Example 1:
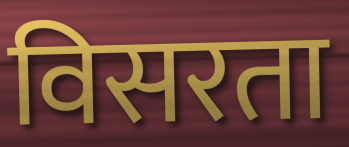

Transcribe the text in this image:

विसरता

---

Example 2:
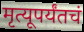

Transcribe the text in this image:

मृत्यूपर्यंतचं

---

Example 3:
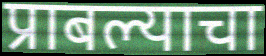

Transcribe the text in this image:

प्राबल्याचा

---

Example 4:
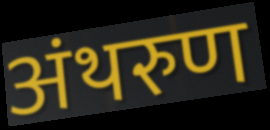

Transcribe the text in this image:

अंथरुण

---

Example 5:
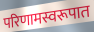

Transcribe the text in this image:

परिणामस्वरूपात